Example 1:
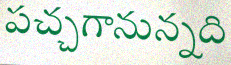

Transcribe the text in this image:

పచ్చగానున్నది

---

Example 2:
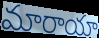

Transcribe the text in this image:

మారాయా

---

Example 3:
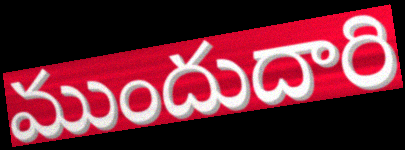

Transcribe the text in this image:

ముందుదారి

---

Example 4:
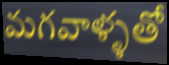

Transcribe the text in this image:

మగవాళ్ళతో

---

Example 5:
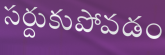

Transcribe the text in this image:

సర్దుకుపోవడం